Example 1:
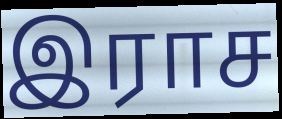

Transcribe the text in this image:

இராச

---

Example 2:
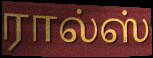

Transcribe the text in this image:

ரால்ஸ்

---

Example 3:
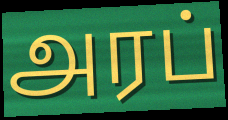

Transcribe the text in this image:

அரப்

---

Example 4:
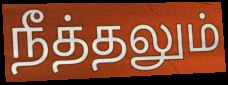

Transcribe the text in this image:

நீத்தலும்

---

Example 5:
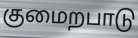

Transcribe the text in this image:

குமைறபாடு